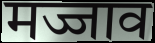
मज्जाव